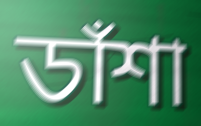
ডাঁশা